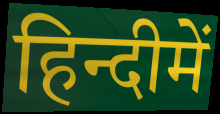
हिन्दीमें